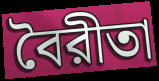
বৈরীতা